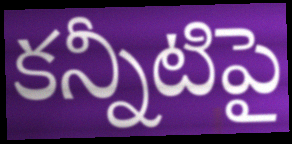
కన్నీటిపై